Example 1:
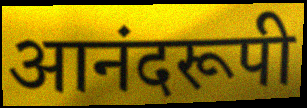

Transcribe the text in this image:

आनंदरूपी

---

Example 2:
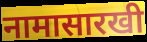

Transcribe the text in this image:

नामासारखी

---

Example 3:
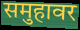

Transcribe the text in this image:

समुहावर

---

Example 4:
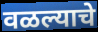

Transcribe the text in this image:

वळल्याचे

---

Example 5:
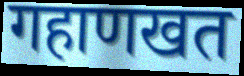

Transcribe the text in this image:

गहाणखत